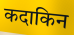
कदाकिन